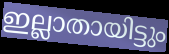
ഇല്ലാതായിട്ടും